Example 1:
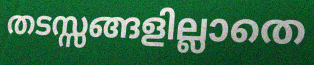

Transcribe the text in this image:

തടസ്സങ്ങളില്ലാതെ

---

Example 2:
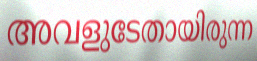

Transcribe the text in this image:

അവളുടേതായിരുന്ന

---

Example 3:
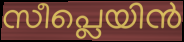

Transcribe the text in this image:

സീപ്ലെയിൻ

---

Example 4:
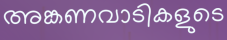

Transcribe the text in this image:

അങ്കണവാടികളുടെ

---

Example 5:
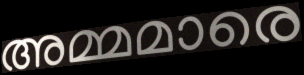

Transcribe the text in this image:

അമ്മമാരെ